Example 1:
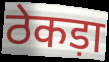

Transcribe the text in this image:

ठेकड़ा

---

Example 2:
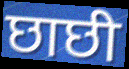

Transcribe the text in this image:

छाछी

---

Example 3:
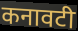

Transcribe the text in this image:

कनावटी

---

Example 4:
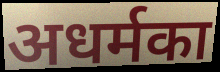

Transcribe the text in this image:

अधर्मका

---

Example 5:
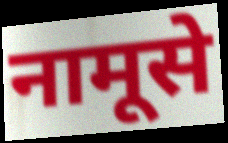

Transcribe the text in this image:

नामूसे